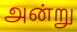
அன்று